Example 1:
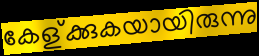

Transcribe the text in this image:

കേള്ക്കുകയായിരുന്നു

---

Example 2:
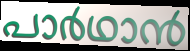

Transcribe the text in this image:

പാർഥാൻ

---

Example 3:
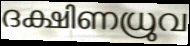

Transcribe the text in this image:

ദക്ഷിണധ്രുവ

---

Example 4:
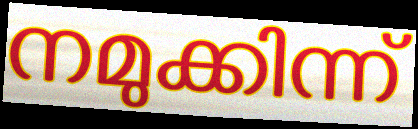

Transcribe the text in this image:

നമുക്കിന്ന്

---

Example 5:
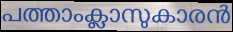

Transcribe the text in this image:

പത്താംക്ലാസുകാരൻ